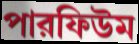
পারফিউম